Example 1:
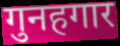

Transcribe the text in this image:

गुनहगार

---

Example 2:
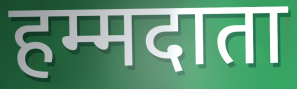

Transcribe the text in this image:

हम्मदाता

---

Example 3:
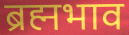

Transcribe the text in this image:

ब्रह्मभाव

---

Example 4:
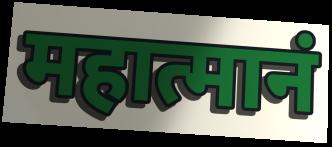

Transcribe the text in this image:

महात्मानं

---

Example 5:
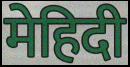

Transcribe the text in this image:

मेहिदी